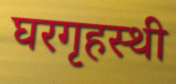
घरगृहस्थी